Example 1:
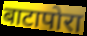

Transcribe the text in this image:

बाटापोरा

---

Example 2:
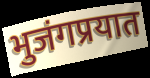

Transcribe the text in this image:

भुजंगप्रयात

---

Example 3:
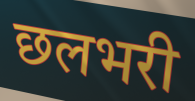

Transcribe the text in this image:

छलभरी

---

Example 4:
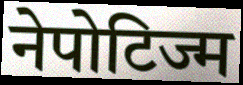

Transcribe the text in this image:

नेपोटिज्‍म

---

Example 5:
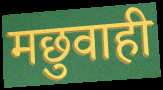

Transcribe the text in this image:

मछुवाही